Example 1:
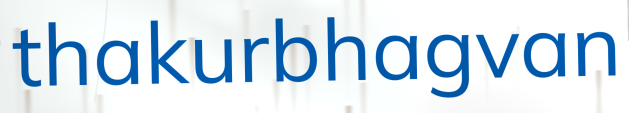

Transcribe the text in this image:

thakurbhagvan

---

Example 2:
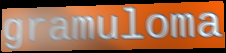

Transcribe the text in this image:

gramuloma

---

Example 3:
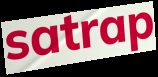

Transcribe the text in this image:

satrap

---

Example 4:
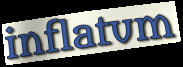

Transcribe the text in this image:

inflatum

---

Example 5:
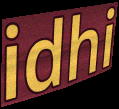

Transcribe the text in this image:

idhi